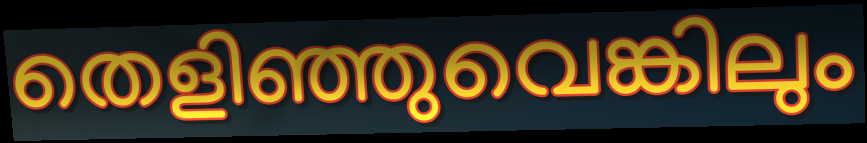
തെളിഞ്ഞുവെങ്കിലും